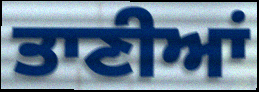
ਤਾਣੀਆਂ